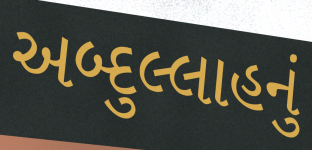
અબ્દુલ્લાહનું